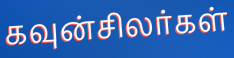
கவுன்சிலர்கள்